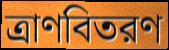
ত্রাণবিতরণ